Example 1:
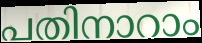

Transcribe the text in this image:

പതിനാറാം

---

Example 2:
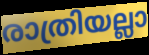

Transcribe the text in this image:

രാത്രിയല്ലാ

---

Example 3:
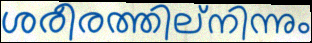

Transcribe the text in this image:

ശരീരത്തില്നിന്നും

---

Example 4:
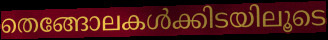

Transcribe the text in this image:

തെങ്ങോലകൾക്കിടയിലൂടെ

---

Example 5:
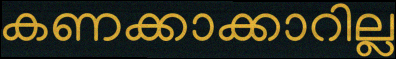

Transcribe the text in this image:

കണക്കാക്കാറില്ല